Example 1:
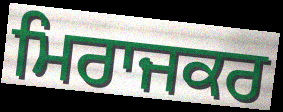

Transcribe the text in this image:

ਮਿਰਾਜਕਰ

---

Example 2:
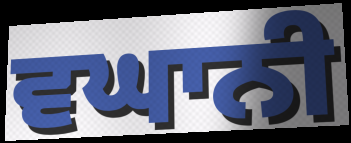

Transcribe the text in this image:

ਵਘਾਨੀ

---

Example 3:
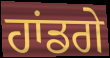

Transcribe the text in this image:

ਹਾਂਡਗੇ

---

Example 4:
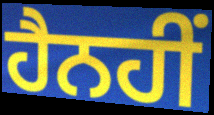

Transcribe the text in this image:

ਹੈਨਹੀਂ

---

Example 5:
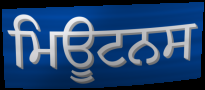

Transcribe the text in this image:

ਮਿਊਟਨਸ